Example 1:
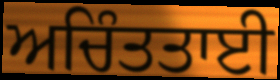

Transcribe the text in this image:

ਅਚਿੰਤਤਾਈ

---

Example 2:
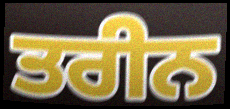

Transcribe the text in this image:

ਤਰੀਨ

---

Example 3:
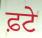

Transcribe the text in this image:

ਫ਼ਟੇ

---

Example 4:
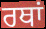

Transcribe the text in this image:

ਰਥਾਂ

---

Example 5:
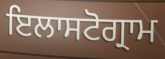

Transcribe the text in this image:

ਇਲਾਸਟੋਗ੍ਰਾਮ